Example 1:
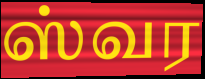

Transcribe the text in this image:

ஸ்வர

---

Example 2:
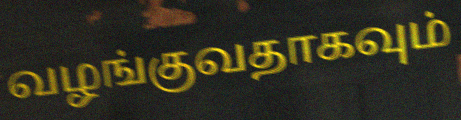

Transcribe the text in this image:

வழங்குவதாகவும்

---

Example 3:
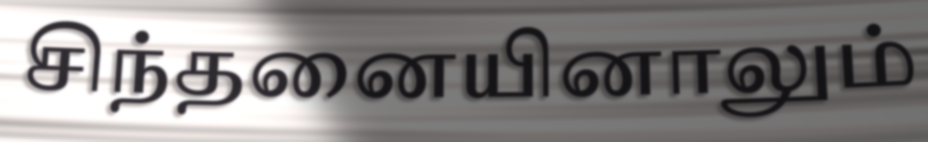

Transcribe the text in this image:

சிந்தனையினாலும்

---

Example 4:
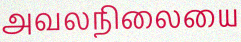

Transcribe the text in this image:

அவலநிலையை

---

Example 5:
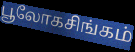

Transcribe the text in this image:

பூலோகசிங்கம்